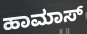
ಹಾಮಾಸ್